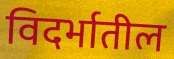
विदर्भातील